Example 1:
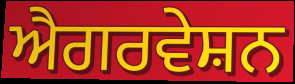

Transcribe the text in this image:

ਐਗਰਵੇਸ਼ਨ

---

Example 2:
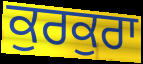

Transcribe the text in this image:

ਕੁਰਕੁਰਾ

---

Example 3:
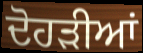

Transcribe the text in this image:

ਦੋਹੜੀਆਂ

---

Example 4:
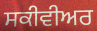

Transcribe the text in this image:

ਸਕੀਵੀਅਰ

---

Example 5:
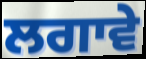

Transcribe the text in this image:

ਲਗਾਵੇ